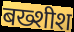
बख्शीश